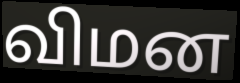
விமன